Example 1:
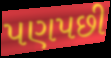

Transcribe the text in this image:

પણપછી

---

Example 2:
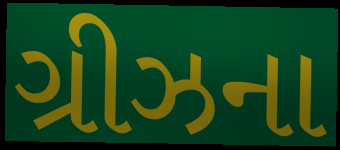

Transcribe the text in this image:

ગ્રીઝના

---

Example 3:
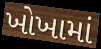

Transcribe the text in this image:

ખોખામાં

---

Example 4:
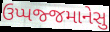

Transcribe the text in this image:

ઉપ્પજ્જમાનેસુ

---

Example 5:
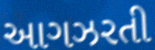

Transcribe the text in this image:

આગઝરતી